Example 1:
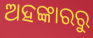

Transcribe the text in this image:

ଅହଙ୍କାରରୁ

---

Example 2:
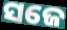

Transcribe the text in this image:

ସଜେ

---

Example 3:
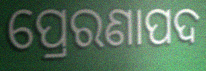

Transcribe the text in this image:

ପ୍ରେରଣାପଦ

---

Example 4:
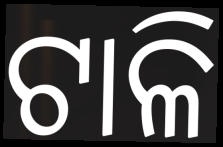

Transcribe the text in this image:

ଟାଳି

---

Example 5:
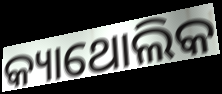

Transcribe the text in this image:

କ୍ୟାଥୋଲିକ